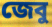
জেবু